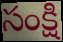
సంక్షి